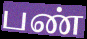
பண்